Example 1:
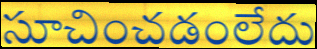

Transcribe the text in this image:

సూచించడంలేదు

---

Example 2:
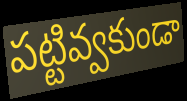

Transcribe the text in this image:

పట్టివ్వకుండా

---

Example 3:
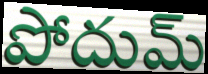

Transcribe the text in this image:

పోదుమ్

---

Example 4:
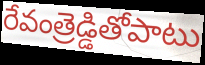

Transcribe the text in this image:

రేవంత్రెడ్డితోపాటు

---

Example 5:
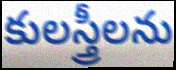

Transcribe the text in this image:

కులస్త్రీలను